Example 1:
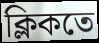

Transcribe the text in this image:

ক্লিকতে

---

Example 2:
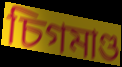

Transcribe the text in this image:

চিগমাণ্ড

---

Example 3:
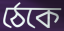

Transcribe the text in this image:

ঠেকে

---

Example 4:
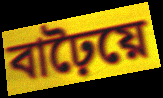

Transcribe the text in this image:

বাঢ়ৈয়ে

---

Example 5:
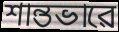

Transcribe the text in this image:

শান্তভাৱে